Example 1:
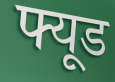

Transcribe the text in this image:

फ्यूड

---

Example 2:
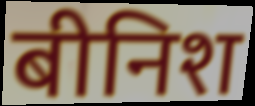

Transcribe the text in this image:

बीनिश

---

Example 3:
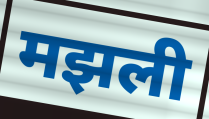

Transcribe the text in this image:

मझली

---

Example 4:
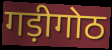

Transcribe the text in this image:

गड़ीगोठ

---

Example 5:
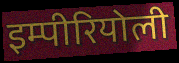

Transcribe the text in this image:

इम्पीरियोली